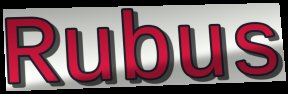
Rubus